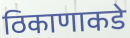
ठिकाणाकडे